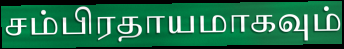
சம்பிரதாயமாகவும்